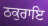
ਠਕੁਰਾਇ